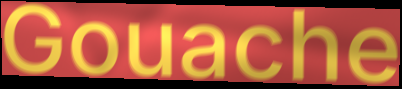
Gouache